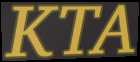
KTA